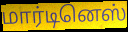
மார்டினெஸ்